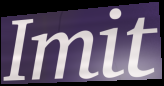
Imit